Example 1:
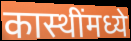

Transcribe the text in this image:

कास्थींमध्ये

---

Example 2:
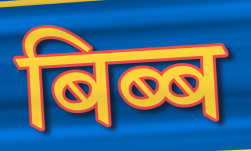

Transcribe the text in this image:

बिब्ब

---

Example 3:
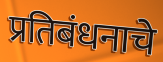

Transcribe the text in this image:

प्रतिबंधनाचे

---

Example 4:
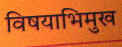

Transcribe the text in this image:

विषयाभिमुख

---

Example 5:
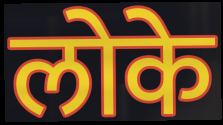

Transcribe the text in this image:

लोके